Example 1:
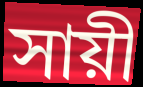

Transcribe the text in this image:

সায়ী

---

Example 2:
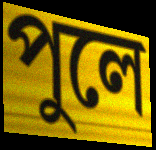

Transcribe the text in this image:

পুলে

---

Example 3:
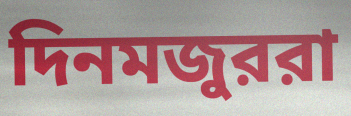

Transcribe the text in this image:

দিনমজুররা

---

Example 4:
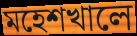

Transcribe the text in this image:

মহেশখালে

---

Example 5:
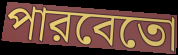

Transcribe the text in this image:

পারবেতো